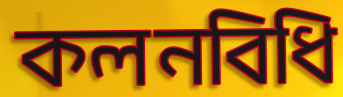
কলনবিধি